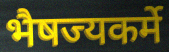
भैषज्यकर्मे